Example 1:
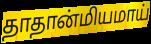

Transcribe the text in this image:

தாதான்மியமாய்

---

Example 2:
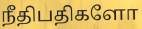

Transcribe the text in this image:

நீதிபதிகளோ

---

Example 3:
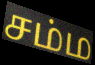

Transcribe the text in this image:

சம்ம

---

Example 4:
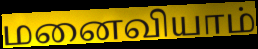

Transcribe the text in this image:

மனைவியாம்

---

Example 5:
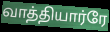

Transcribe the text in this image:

வாத்தியார்ரே